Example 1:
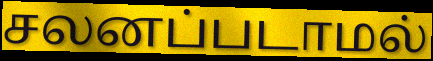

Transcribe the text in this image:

சலனப்படாமல்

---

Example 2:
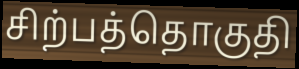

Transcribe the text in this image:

சிற்பத்தொகுதி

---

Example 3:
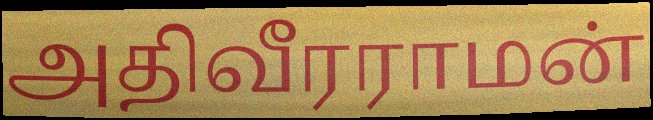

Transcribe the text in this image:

அதிவீரராமன்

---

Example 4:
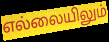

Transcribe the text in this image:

எல்லையிலும்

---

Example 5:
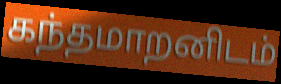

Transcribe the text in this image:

கந்தமாறனிடம்